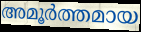
അമൂർത്തമായ